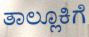
ತಾಲ್ಲೂಕಿಗೆ